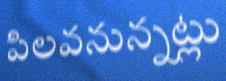
పిలవనున్నట్లు